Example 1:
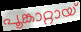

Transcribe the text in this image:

പൂങ്കാറ്റായ്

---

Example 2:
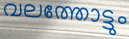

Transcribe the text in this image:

വലത്തോട്ടും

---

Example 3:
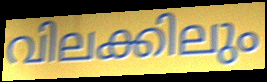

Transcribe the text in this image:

വിലക്കിലും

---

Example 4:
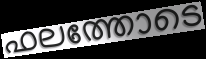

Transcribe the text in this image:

ഫലത്തോടെ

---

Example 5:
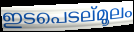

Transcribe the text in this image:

ഇടപെടല്മൂലം